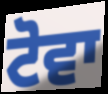
ਟੋਵਾ